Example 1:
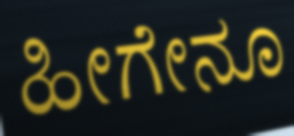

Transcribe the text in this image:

ಹೀಗೇನೂ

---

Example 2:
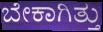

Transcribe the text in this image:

ಬೇಕಾಗಿತ್ತು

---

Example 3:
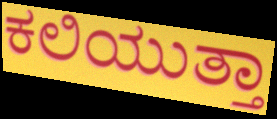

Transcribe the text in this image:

ಕಲಿಯುತ್ತಾ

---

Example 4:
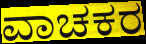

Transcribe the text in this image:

ವಾಚಕರ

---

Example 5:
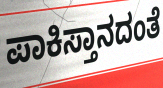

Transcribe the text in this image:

ಪಾಕಿಸ್ತಾನದಂತೆ